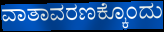
ವಾತಾವರಣಕ್ಕೊಂದು